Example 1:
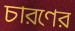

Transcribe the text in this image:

চারণের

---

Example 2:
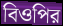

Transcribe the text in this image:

বিওপির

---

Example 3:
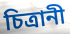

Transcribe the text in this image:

চিত্রানী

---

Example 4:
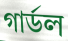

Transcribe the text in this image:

গার্ডল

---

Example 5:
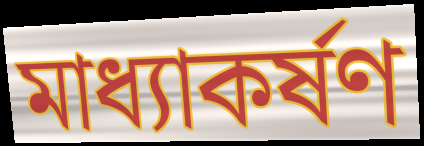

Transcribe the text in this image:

মাধ্যাকর্ষণ